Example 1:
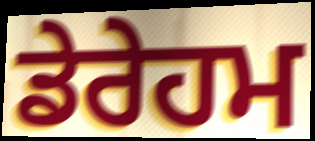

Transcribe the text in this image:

ਡੇਰੇਹਮ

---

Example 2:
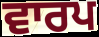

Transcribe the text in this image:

ਵਾਰਪ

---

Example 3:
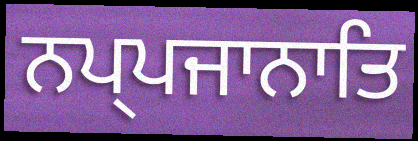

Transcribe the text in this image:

ਨਪ੍ਪਜਾਨਾਤਿ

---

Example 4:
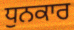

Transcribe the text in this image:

ਧੁਨਕਾਰ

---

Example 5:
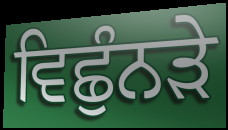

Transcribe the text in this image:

ਵਿਛੁੰਨੜੇ